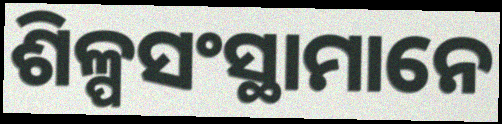
ଶିଳ୍ପସଂସ୍ଥାମାନେ